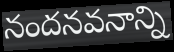
నందనవనాన్ని